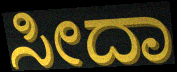
ಸೀದಾ